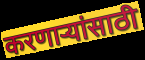
करणाऱ्यांसाठी